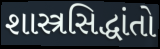
શાસ્ત્રસિદ્ધાંતો